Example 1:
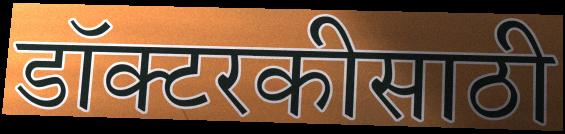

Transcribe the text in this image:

डॉक्टरकीसाठी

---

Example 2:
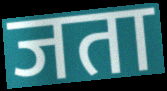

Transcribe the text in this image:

जता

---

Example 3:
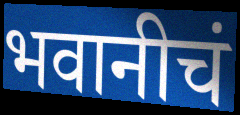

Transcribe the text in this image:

भवानीचं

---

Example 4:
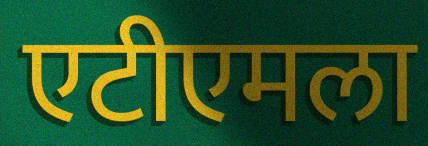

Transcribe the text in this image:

एटीएमला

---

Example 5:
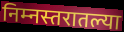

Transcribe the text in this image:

निम्नस्तरातल्या